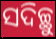
ସଦିଚ୍ଛୁ